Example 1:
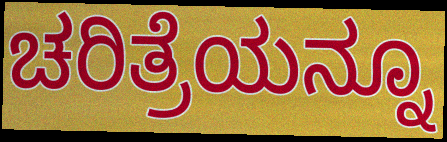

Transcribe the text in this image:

ಚರಿತ್ರೆಯನ್ನೂ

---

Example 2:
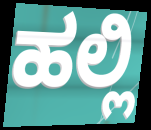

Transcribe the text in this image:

ಹಲ್ಲಿ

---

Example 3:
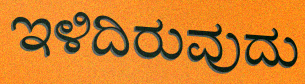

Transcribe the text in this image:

ಇಳಿದಿರುವುದು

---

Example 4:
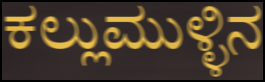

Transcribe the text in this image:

ಕಲ್ಲುಮುಳ್ಳಿನ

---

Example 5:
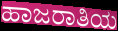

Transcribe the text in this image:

ಹಾಜರಾತಿಯ